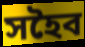
সহৈব